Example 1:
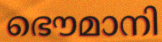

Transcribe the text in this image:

ഭൌമാനി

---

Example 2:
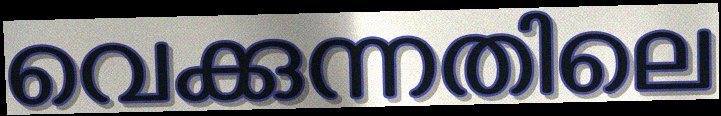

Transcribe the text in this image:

വെക്കുന്നതിലെ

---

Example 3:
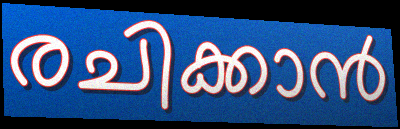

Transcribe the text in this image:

രചിക്കാൻ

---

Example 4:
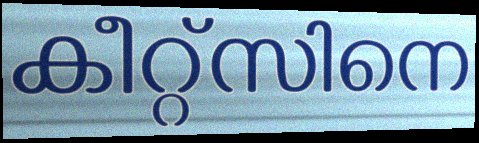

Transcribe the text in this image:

കീറ്റ്സിനെ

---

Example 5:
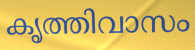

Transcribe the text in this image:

കൃത്തിവാസം